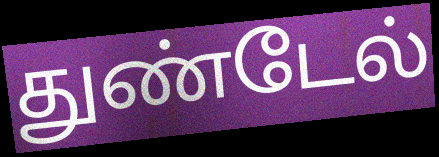
துண்டேல்